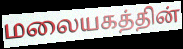
மலையகத்தின்